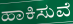
ಹಾಕಿಸುವೆ